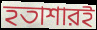
হতাশারই